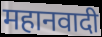
महानवादी